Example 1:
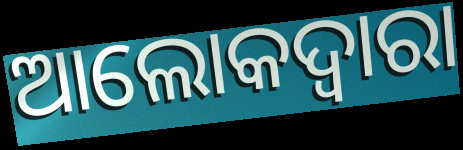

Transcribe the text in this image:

ଆଲୋକଦ୍ୱାରା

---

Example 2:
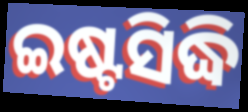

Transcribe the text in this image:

ଇଷ୍ଟସିଦ୍ଧି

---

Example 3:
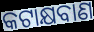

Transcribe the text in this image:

କଟାକ୍ଷବାଣ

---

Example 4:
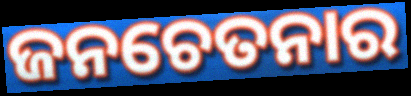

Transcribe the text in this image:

ଜନଚେତନାର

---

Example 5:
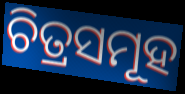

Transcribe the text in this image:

ଚିତ୍ରସମୂହ